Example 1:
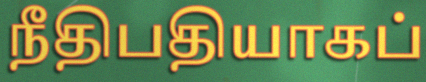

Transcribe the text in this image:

நீதிபதியாகப்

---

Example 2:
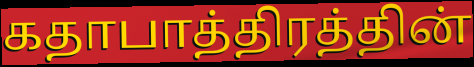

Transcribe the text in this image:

கதாபாத்திரத்தின்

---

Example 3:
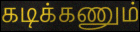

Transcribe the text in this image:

கடிக்கணும்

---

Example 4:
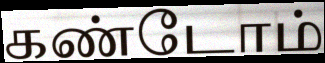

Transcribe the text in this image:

கண்டோம்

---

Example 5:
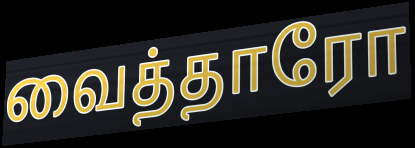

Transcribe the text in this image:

வைத்தாரோ